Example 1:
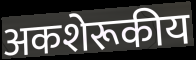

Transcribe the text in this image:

अकशेरूकीय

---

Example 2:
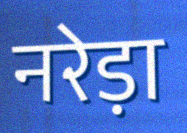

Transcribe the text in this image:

नरेड़ा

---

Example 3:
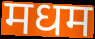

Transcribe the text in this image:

मधम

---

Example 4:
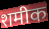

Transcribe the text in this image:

शमीक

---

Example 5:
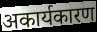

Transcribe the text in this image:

अकार्यकारण